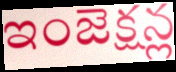
ఇంజెక్షన్ల